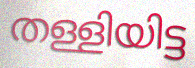
തള്ളിയിട്ട